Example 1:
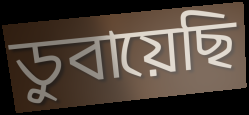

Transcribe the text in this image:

ডুবায়েছি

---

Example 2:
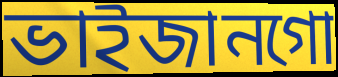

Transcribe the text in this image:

ভাইজানগো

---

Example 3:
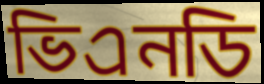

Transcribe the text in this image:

ভিএনডি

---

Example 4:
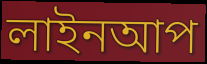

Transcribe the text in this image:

লাইনআপ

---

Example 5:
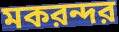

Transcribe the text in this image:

মকরন্দর